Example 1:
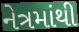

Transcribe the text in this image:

નેત્રમાંથી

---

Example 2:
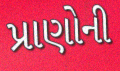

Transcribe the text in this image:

પ્રાણોની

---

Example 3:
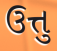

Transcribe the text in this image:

ઉત્તુ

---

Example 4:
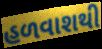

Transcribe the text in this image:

હળવાશથી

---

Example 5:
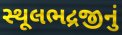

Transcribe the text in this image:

સ્થૂલભદ્રજીનું